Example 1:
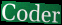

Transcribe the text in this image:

Coder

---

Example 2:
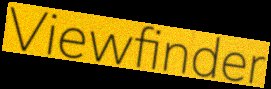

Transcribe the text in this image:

Viewfinder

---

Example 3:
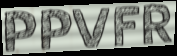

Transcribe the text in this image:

PPVFR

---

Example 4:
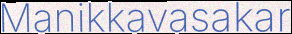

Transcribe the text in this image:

Manikkavasakar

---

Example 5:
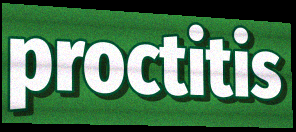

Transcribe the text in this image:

proctitis